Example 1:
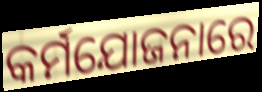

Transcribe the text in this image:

କର୍ମଯୋଜନାରେ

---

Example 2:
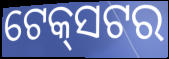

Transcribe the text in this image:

ଟେକ୍‌ସଟର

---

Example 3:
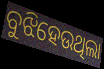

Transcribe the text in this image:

ବୁଝିହେଉଥିଲା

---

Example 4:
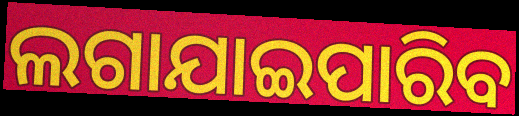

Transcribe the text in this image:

ଲଗାଯାଇପାରିବ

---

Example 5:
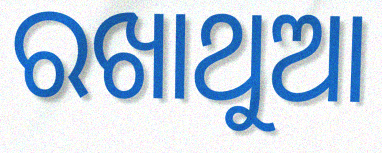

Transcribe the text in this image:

ରଖାଥୁଆ